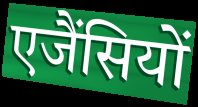
एजैंसियों